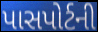
પાસપોર્ટની